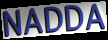
NADDA